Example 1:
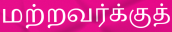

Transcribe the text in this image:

மற்றவர்க்குத்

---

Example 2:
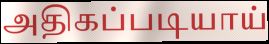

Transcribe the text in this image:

அதிகப்படியாய்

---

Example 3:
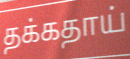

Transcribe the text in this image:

தக்கதாய்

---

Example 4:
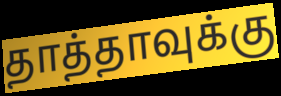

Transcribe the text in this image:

தாத்தாவுக்கு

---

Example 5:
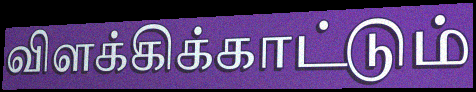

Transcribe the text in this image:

விளக்கிக்காட்டும்